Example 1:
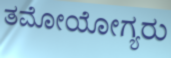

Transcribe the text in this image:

ತಮೋಯೋಗ್ಯರು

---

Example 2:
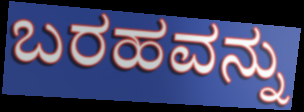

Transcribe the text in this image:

ಬರಹವನ್ನು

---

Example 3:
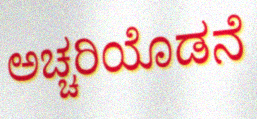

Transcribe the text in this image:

ಅಚ್ಚರಿಯೊಡನೆ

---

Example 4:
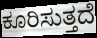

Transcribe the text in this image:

ಕೂರಿಸುತ್ತದೆ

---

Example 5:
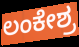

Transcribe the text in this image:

ಲಂಕೇಶ್ರ